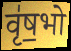
वृ॑ष॒भो